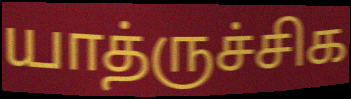
யாத்ருச்சிக